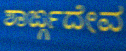
ಶಾರ್ಙ್ಗದೇವ